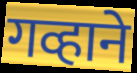
गव्हाने